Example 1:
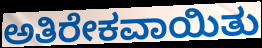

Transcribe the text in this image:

ಅತಿರೇಕವಾಯಿತು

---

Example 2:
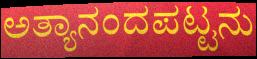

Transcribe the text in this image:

ಅತ್ಯಾನಂದಪಟ್ಟನು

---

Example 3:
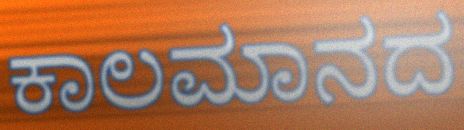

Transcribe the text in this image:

ಕಾಲಮಾನದ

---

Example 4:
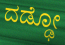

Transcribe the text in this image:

ದಡ್ಢೋ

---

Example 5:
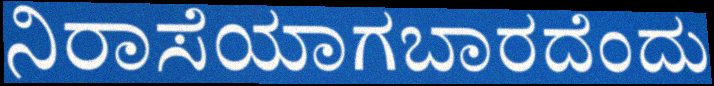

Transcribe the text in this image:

ನಿರಾಸೆಯಾಗಬಾರದೆಂದು